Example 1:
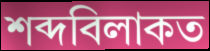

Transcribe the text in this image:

শব্দবিলাকত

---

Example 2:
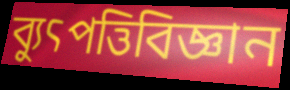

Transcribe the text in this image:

ব্যুৎপত্তিবিজ্ঞান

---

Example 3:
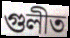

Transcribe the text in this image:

গুলীত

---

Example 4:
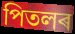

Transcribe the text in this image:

পিতলৰ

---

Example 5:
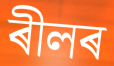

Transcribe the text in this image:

ৰীলৰ